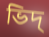
ভিদ্